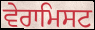
ਵੇਰਾਮਿਸਟ